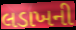
લડાખની